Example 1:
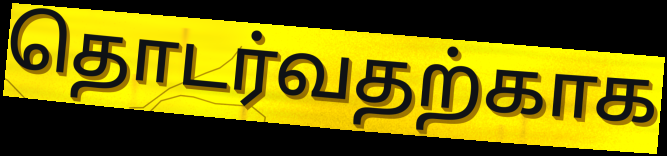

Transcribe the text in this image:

தொடர்வதற்காக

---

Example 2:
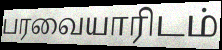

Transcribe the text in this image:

பரவையாரிடம்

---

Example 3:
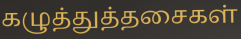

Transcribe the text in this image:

கழுத்துத்தசைகள்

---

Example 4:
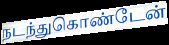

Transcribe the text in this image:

நடந்துகொண்டேன்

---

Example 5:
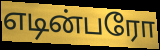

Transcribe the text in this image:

எடின்பரோ